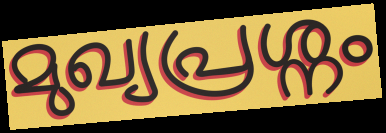
മുഖ്യപ്രശ്നം